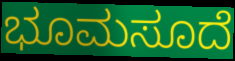
ಭೂಮಸೂದೆ